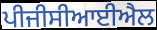
ਪੀਜੀਸੀਆਈਐਲ